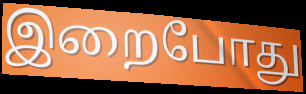
இறைபோது